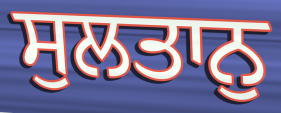
ਸੁਲਤਾਨੁ